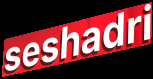
seshadri